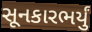
સૂનકારભર્યું